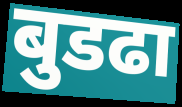
बुडढा